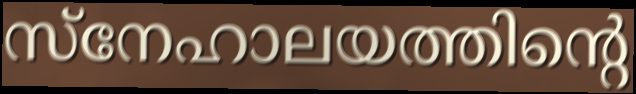
സ്നേഹാലയത്തിന്റെ